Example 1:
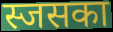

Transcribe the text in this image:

स्जसका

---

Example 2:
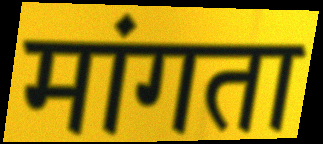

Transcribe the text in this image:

मांगता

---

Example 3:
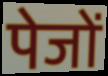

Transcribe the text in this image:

पेजों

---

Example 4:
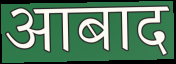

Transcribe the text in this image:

आबाद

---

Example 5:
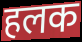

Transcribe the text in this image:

हलक